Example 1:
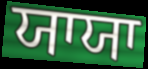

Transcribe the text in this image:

ਯਾਯਾ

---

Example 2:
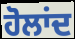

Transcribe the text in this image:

ਹੋਲਾਂਦ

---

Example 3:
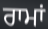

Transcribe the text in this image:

ਰਾਮਾਂ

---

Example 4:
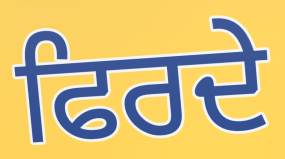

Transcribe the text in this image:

ਫਿਰਦੇ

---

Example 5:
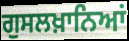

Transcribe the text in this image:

ਗੁਸਲਖ਼ਾਨਿਆਂ